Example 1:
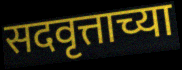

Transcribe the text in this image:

सदवृत्ताच्या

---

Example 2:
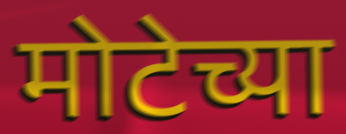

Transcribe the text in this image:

मोटेच्या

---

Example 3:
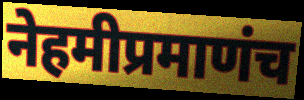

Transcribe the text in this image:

नेहमीप्रमाणंच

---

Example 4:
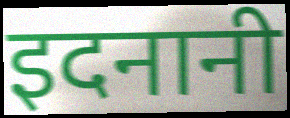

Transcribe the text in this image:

इदनानी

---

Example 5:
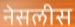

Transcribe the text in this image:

नेसलीस